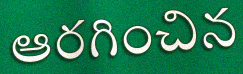
ఆరగించిన